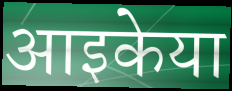
आइकेया